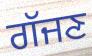
ਗੱਜਣ